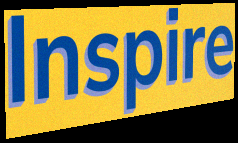
Inspire